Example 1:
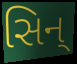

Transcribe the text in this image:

સિન્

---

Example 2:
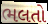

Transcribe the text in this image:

ભલતો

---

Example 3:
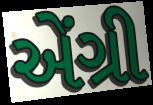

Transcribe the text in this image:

એંગ્રી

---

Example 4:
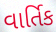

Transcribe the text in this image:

વાર્તિક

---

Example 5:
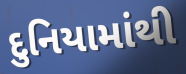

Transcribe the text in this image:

દુનિયામાંથી